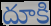
దూకి